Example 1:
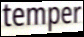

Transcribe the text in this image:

temper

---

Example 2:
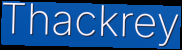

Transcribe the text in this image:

Thackrey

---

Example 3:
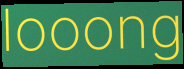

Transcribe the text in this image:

looong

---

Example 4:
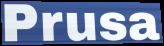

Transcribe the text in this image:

Prusa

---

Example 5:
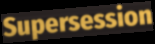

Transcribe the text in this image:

Supersession